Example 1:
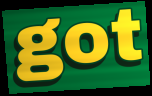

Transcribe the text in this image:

got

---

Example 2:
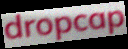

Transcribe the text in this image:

dropcap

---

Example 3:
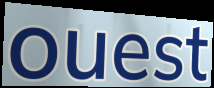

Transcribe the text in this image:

ouest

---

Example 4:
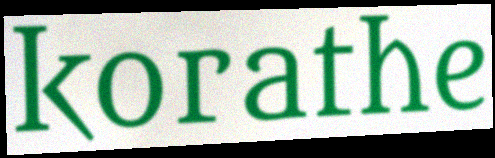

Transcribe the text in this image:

korathe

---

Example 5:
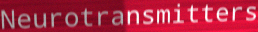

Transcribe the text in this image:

Neurotransmitters